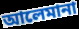
আলেমানা